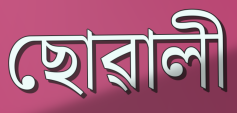
ছোৱালী